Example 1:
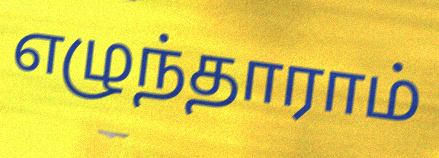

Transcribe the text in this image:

எழுந்தாராம்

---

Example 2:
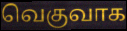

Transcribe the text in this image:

வெகுவாக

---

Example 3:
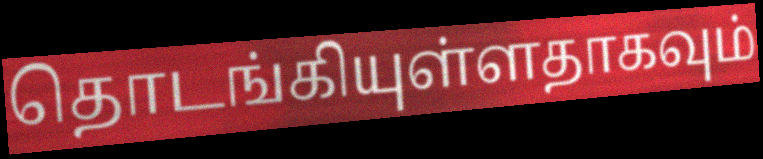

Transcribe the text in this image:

தொடங்கியுள்ளதாகவும்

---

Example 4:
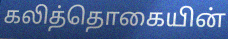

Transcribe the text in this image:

கலித்தொகையின்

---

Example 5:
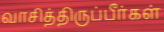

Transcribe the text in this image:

வாசித்திருப்பீர்கள்